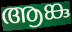
ആങ്കു